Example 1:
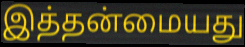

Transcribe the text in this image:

இத்தன்மையது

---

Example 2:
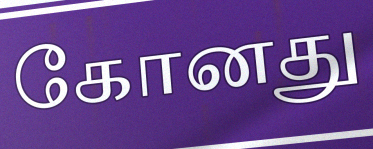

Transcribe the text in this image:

கோனது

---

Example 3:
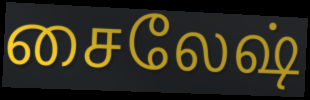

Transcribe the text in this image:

சைலேஷ்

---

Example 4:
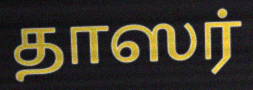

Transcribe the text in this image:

தாஸர்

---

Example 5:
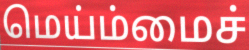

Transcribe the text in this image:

மெய்ம்மைச்